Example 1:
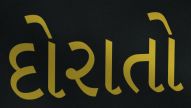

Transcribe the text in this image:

દોરાતો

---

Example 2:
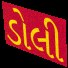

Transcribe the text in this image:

ડોલી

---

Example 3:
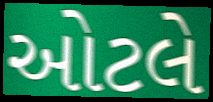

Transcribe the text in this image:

ઓટલે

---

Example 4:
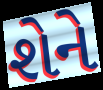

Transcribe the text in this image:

શેને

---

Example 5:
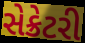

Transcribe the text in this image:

સેક્રેટરી